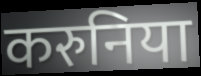
करुनिया